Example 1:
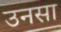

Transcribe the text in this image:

उनसा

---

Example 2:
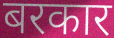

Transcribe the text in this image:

बरकार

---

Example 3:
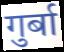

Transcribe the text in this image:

गुर्बा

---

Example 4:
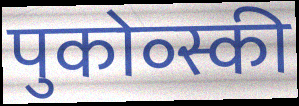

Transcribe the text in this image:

पुकोव्स्की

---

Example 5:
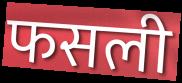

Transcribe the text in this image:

फसली